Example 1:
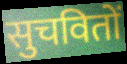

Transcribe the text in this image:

सुचवितों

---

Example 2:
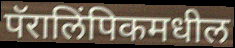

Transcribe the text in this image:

पॅरालिंपिकमधील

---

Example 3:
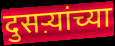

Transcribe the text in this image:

दुसऱ्‍यांच्या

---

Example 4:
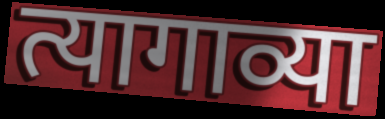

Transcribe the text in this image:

त्यागाव्या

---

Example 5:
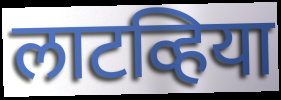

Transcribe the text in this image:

लाटव्हिया